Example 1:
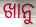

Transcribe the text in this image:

ଖାନୁ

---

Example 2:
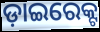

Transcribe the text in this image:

ଡ଼ାଇରେକ୍ଟ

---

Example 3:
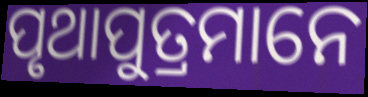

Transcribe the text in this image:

ପୃଥାପୁତ୍ରମାନେ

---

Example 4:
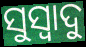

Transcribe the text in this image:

ସୁସ୍ୱାଦୁ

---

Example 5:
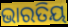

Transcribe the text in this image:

ଭାରତିୟ